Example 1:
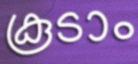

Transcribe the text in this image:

കൂടാം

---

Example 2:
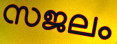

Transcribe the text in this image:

സജലം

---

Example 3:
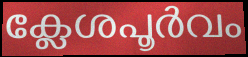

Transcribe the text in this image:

ക്ലേശപൂർവം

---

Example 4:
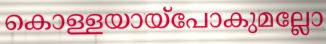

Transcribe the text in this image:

കൊള്ളയായ്പോകുമല്ലോ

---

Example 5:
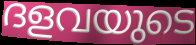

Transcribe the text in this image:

ദളവയുടെ